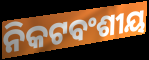
ନିକଟବଂଶୀୟ